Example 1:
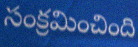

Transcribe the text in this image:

సంక్రమించింది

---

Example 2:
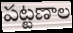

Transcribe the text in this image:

పట్టణాల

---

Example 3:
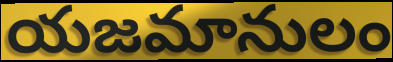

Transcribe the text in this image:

యజమానులం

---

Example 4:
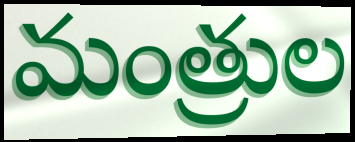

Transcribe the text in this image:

మంత్రుల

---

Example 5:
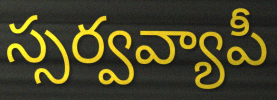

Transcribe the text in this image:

స్సర్వవ్యాపీ